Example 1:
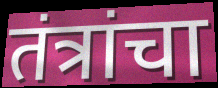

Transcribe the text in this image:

तंत्रांचा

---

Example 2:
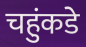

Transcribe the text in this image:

चहुंकडे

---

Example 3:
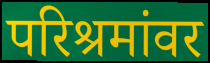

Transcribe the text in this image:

परिश्रमांवर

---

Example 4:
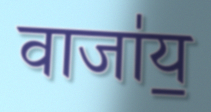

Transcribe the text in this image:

वाजा॑य॒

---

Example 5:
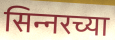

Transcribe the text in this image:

सिन्नरच्या